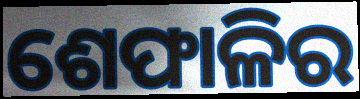
ଶେଫାଳିର